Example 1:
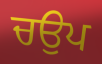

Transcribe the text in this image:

ਚਉਪ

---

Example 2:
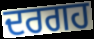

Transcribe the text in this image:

ਦਰਗਹ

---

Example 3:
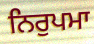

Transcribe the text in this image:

ਨਿਰੁਪਮਾ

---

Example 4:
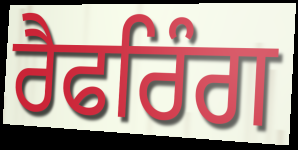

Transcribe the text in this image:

ਰੈਫਰਿੰਗ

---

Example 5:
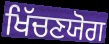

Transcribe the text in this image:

ਖਿੱਚਣਯੋਗ